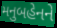
મનુબહેનને